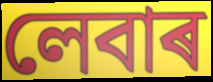
লেবাৰ